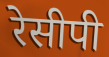
रेसीपी